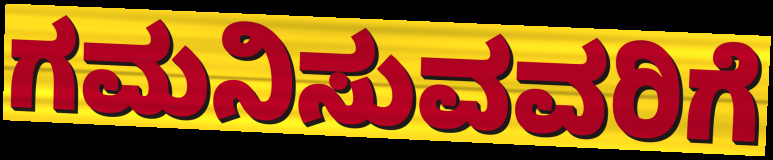
ಗಮನಿಸುವವರಿಗೆ